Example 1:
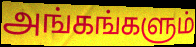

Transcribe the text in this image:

அங்கங்களும்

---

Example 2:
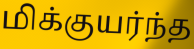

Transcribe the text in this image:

மிக்குயர்ந்த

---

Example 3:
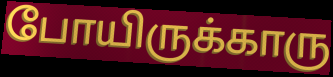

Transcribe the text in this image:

போயிருக்காரு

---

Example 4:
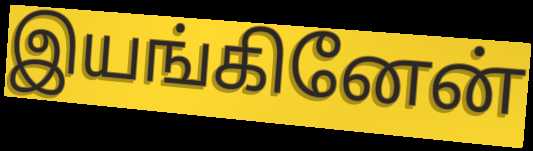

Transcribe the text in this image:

இயங்கினேன்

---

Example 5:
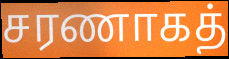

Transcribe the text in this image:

சரணாகத்